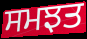
ਸਮਝਤ